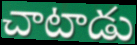
చాటాడు